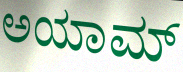
ಅಯಾಮ್